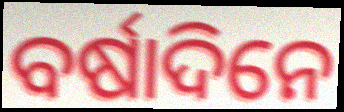
ବର୍ଷାଦିନେ